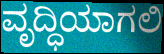
ವೃದ್ಧಿಯಾಗಲಿ